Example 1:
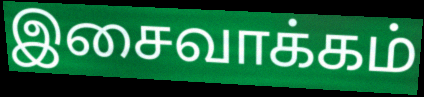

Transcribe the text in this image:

இசைவாக்கம்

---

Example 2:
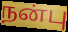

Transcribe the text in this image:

நன்பு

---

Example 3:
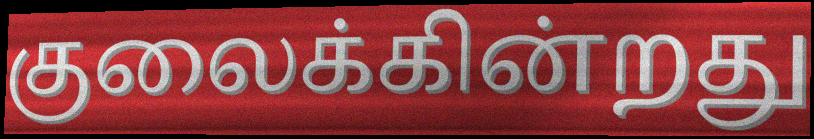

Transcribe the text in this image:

குலைக்கின்றது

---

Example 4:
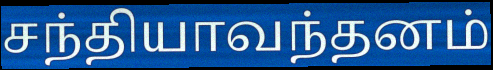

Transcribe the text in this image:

சந்தியாவந்தனம்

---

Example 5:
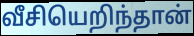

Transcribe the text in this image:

வீசியெறிந்தான்